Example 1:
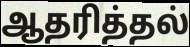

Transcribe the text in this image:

ஆதரித்தல்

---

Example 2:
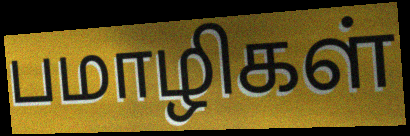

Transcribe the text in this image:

பமாழிகள்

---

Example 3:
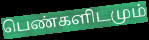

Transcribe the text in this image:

பெண்களிடமும்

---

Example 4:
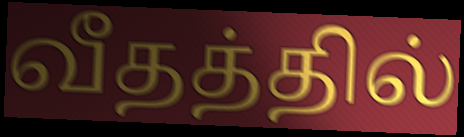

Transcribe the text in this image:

வீதத்தில்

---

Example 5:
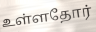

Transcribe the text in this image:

உள்ளதோர்